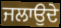
ਜਲਾਉਦੇ